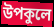
উপকুলে